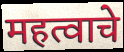
महत्वाचे